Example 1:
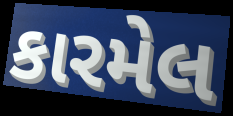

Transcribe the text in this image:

કારમેલ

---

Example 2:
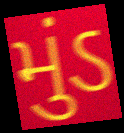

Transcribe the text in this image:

મુંડ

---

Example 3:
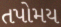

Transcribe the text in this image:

તપોમય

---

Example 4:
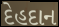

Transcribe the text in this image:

દેહદાન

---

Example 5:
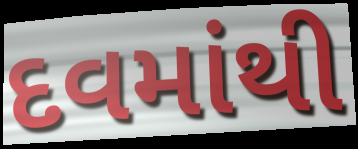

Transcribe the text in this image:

દવમાંથી